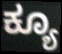
ಕ್ಯೂ